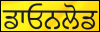
ਡਾਓਨਲੋਡ